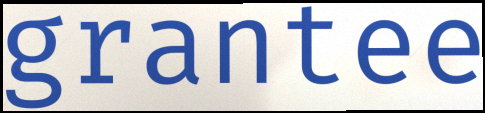
grantee